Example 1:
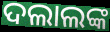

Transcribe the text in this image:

ଦଲାଲଙ୍କ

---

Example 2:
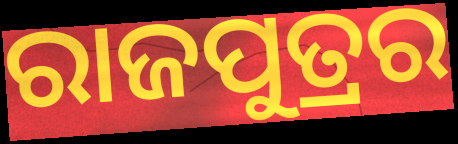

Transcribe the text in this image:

ରାଜପୁତ୍ରର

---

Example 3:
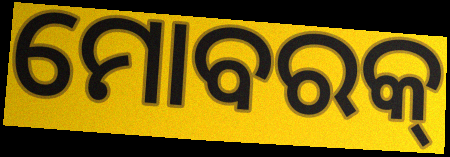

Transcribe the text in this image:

ମୋବରକ୍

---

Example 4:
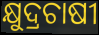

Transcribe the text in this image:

କ୍ଷୁଦ୍ରଚାଷୀ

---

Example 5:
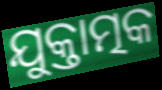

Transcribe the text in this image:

ଯୁକ୍ତାତ୍ମକ